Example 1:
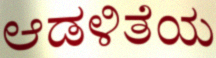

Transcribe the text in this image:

ಆಡಳಿತೆಯ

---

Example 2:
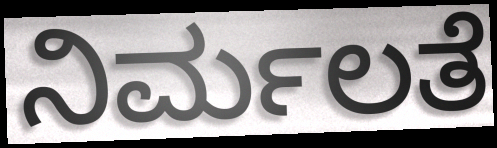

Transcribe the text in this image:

ನಿರ್ಮಲತೆ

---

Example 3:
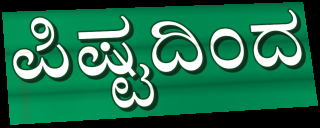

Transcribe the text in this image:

ಪಿಷ್ಟದಿಂದ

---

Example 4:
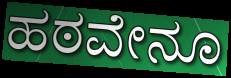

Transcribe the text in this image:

ಹಠವೇನೂ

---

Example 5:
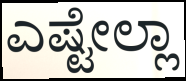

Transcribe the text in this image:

ಎಷ್ಟೇಲ್ಲಾ